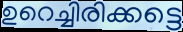
ഉറെച്ചിരിക്കട്ടെ